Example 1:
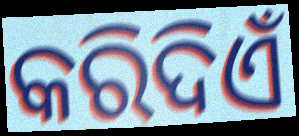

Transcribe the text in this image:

କରିଦିଏଁ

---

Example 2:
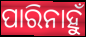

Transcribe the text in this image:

ପାରିନାହୁଁ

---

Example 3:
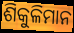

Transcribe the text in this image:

ଶିକୁଳିମାନ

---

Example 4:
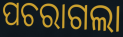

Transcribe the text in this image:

ପଚରାଗଲା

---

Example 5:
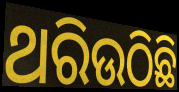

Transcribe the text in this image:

ଥରିଉଠିଛି